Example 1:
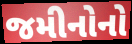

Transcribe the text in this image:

જમીનોનો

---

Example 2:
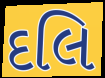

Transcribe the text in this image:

દલિ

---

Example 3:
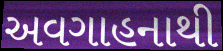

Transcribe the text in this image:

અવગાહનાથી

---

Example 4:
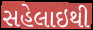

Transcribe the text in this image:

સહેલાઇથી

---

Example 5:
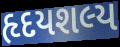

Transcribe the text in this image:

હૃદયશલ્ય